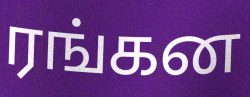
ரங்கன